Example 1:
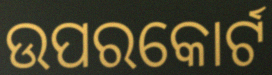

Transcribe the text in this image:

ଉପରକୋର୍ଟ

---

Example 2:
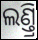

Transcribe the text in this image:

ଲଣ୍ତ୍ରି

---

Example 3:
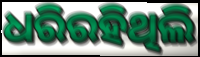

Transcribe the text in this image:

ଧରିରହିଥିଲି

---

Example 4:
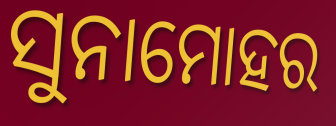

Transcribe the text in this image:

ସୁନାମୋହର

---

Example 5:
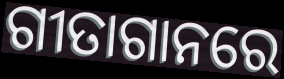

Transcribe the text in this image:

ଗୀତାଗାନରେ